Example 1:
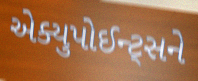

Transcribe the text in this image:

એક્યુપોઈન્ટ્સને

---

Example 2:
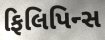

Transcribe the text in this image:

ફિલિપિન્સ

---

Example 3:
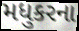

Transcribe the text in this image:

મધુકરના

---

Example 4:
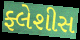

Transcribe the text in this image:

ફ્લેશીસ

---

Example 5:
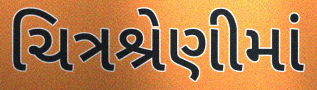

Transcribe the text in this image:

ચિત્રશ્રેણીમાં